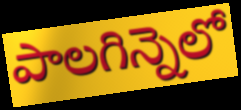
పాలగిన్నెలో